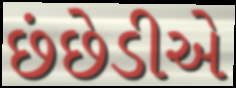
છંછેડીએ